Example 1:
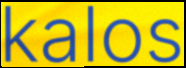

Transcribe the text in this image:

kalos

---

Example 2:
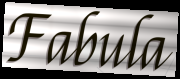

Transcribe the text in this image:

Fabula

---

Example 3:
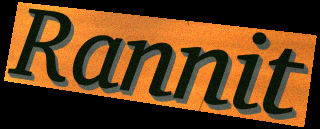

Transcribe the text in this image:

Rannit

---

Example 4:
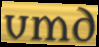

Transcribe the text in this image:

umd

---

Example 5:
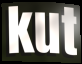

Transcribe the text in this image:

kut